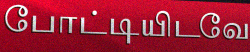
போட்டியிடவே